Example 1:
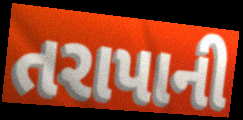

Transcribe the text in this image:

તરાપાની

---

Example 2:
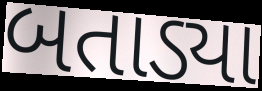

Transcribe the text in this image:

બતાડ્યા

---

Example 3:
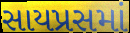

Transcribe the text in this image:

સાયપ્રસમાં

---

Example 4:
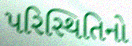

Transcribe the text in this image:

પરિસ્થિતિનો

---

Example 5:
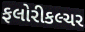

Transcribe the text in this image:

ફલોરીકલ્ચર